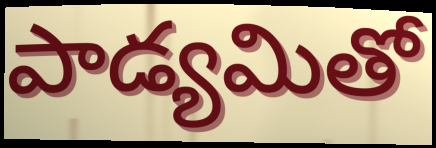
పాడ్యమితో